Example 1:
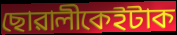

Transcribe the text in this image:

ছোৱালীকেইটাক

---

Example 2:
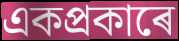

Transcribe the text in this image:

একপ্ৰকাৰে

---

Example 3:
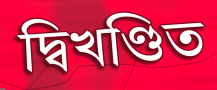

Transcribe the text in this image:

দ্বিখণ্ডিত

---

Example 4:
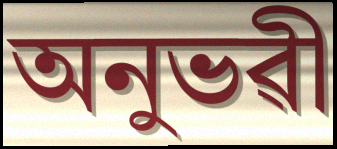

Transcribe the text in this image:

অনুভৱী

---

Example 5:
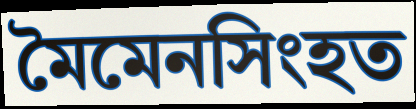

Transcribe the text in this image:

মৈমেনসিংহত